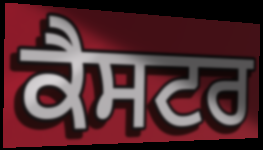
ਕੈਸਟਰ